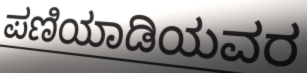
ಪಣಿಯಾಡಿಯವರ